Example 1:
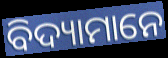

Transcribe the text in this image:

ବିଦ୍ୟାମାନେ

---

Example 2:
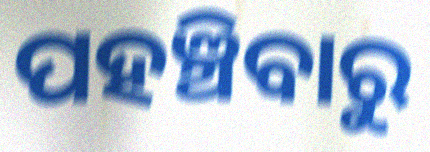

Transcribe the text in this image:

ପହଞ୍ଚିବାରୁ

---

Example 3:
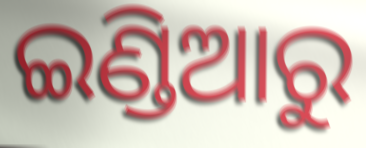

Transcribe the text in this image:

ଇଣ୍ଡିଆରୁ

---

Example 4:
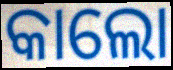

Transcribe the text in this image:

କାଲୋ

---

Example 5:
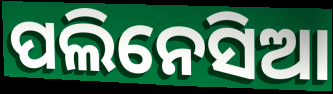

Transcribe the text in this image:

ପଲିନେସିଆ